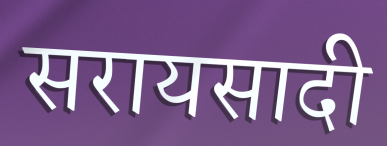
सरायसादी